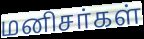
மனிசர்கள்